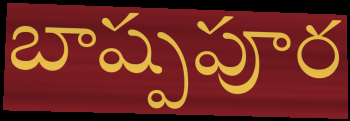
బాష్పపూర